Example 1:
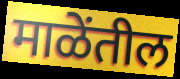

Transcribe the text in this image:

माळेंतील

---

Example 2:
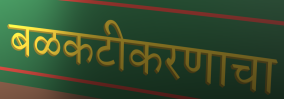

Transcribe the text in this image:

बळकटीकरणाचा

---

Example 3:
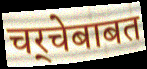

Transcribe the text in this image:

चर्चेबाबत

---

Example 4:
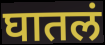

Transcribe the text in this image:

घातलं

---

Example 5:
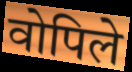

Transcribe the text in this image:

वोपिले